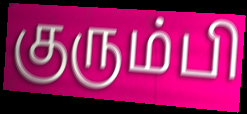
குரும்பி